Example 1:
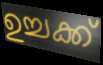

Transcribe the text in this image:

ഉച്ചക്ക്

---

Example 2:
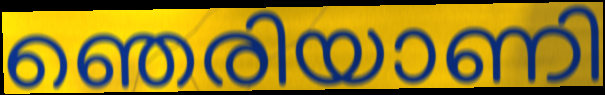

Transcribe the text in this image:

ഞെരിയാണി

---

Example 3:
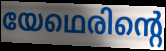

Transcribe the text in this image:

യേഥെരിന്റെ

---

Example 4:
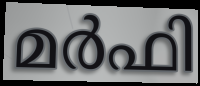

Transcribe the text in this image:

മർഫി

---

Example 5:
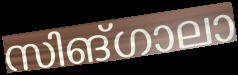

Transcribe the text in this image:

സിങ്ഗാലാ